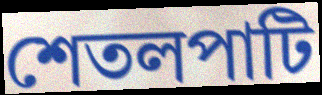
শেতলপাটি